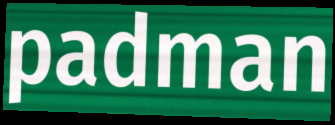
padman